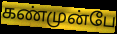
கண்முன்பே